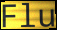
Flu